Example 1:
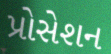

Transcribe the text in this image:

પ્રોસેશન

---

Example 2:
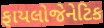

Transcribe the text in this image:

ફાયલોજેનેટિક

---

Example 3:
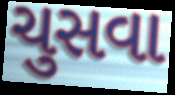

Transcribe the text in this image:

ચુસવા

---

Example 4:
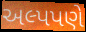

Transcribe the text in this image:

અલ્પપણે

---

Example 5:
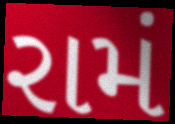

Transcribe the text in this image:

રામં